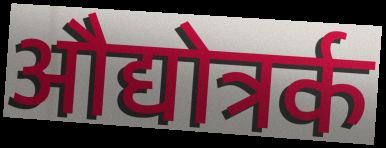
औद्योत्रर्क